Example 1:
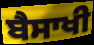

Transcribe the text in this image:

ਬੈਸਾਖੀ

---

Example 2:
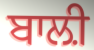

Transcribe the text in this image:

ਬਾਲ਼ੀ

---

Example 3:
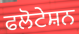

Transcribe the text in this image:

ਫਲੋਟੇਸ਼ਨ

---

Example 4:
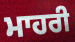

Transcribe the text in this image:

ਮਾਹਰੀ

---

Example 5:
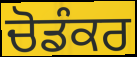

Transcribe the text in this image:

ਚੋਡੰਕਰ